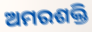
ଅମରଶକ୍ତି